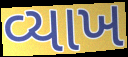
વ્યાખ